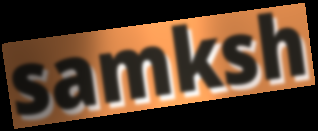
samksh